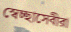
স্বেচ্ছাসেবীরা